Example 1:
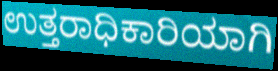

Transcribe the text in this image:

ಉತ್ತರಾಧಿಕಾರಿಯಾಗಿ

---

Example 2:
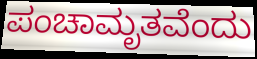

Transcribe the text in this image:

ಪಂಚಾಮೃತವೆಂದು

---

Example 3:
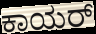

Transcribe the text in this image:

ಕಾಯರ್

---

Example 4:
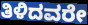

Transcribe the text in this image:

ತಿಳಿದವರೇ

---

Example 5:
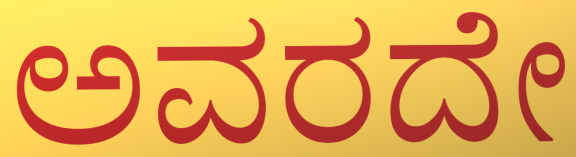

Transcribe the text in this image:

ಅವರದೇ